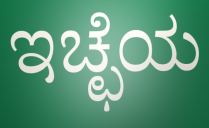
ಇಚ್ಛೆಯ